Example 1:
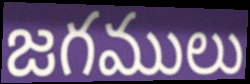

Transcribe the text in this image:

జగములు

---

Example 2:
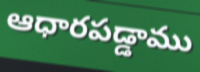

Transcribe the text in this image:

ఆధారపడ్డాము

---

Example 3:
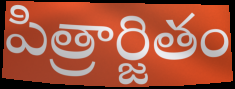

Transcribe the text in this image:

పిత్రార్జితం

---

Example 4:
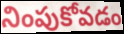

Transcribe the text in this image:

నింపుకోవడం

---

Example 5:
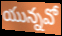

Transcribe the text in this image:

యున్నవో